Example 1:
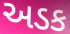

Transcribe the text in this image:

અડક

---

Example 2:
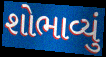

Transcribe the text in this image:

શોભાવ્યું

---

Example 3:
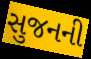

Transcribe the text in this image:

સુજનની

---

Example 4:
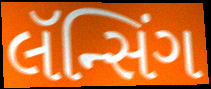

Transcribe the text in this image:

લૅન્સિંગ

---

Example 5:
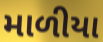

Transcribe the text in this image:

માળીયા